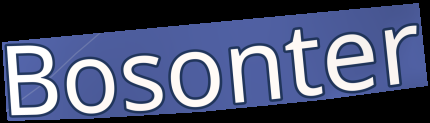
Bosonter